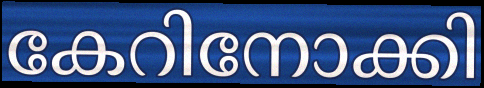
കേറിനോക്കി